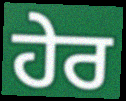
ਹੇਰ